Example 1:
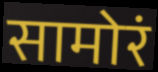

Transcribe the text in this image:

सामोरं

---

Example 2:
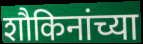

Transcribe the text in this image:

शौकिनांच्या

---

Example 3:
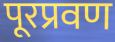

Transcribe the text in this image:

पूरप्रवण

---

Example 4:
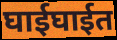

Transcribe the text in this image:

घाईघाईत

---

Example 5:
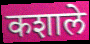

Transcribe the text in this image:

कशाले